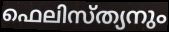
ഫെലിസ്ത്യനും